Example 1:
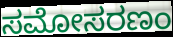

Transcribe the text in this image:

ಸಮೋಸರಣಂ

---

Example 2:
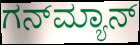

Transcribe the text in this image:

ಗನ್‌ಮ್ಯಾನ್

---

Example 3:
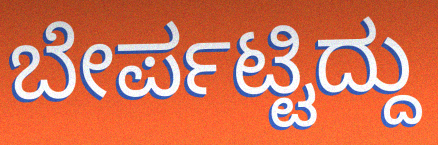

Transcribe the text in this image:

ಬೇರ್ಪಟ್ಟಿದ್ದು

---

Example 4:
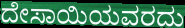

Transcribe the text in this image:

ದೇಸಾಯಿಯವರದು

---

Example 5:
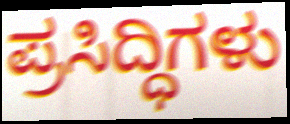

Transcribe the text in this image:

ಪ್ರಸಿದ್ಧಿಗಳು